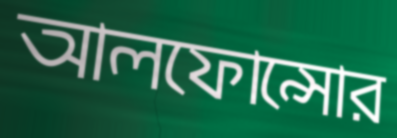
আলফোন্সোর